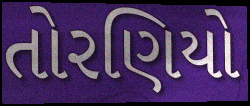
તોરણિયો